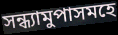
সন্ধ্যামুপাসমহে